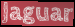
Jaguar